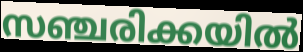
സഞ്ചരിക്കയിൽ